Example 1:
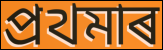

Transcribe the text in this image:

প্ৰথমাৰ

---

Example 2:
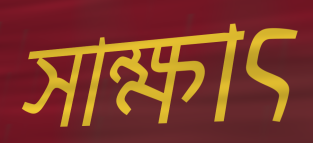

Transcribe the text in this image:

সাক্ষাৎ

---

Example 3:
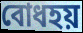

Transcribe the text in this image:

বোধহয়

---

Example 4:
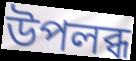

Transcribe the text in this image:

উপলব্ধ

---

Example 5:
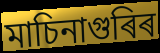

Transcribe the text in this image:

মাচিনাগুৰিৰ